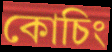
কোচিং